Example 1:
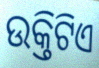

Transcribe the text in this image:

ଉକ୍ତିଟିଏ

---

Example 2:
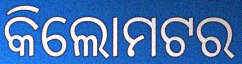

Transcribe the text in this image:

କିଲୋମଟର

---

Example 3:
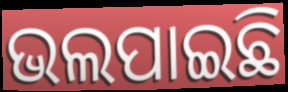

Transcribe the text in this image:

ଭଲପାଇଛି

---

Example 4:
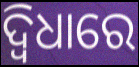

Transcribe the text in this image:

ଦ୍ଵିଧାରେ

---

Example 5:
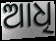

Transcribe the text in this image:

ଆଧି